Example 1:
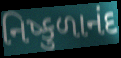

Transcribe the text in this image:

નિષ્કુળાનંદ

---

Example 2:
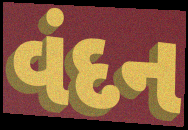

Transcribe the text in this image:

વંદન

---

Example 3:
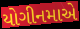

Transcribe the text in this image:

યોગીનમાએ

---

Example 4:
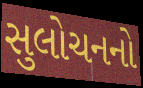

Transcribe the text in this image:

સુલોચનનો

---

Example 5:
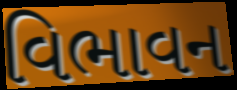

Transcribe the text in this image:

વિભાવન